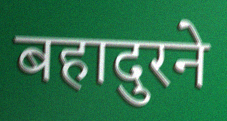
बहादुरने